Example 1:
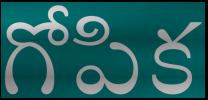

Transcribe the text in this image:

గోపిక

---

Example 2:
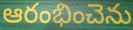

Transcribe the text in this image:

ఆరంభించెను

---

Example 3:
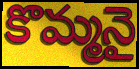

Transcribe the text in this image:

కొమ్మనై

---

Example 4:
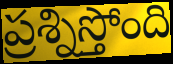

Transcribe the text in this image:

ప్రశ్నిస్తోంది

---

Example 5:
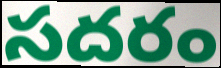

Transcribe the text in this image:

సదరం